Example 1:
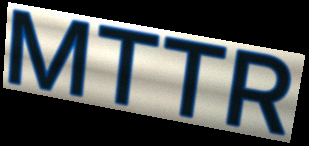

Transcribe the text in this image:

MTTR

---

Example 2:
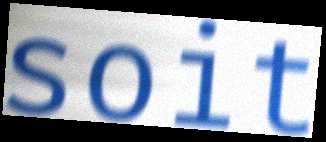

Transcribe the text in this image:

soit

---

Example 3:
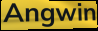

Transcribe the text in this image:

Angwin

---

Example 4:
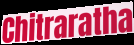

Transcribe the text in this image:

Chitraratha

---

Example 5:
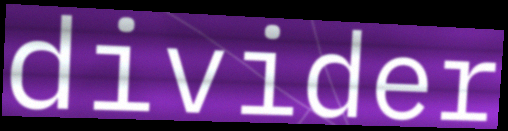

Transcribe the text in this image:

divider